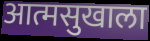
आत्मसुखाला